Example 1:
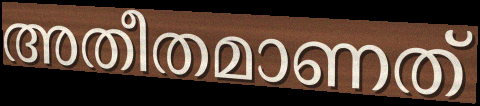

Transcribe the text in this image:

അതീതമാണത്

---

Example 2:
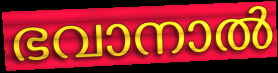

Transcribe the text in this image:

ഭവാനാൽ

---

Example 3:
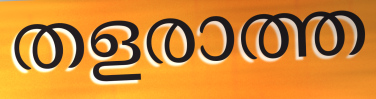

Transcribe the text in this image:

തളരാത്ത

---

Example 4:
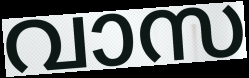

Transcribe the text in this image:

വാസ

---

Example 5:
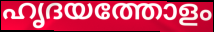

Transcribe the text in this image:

ഹൃദയത്തോളം